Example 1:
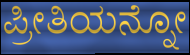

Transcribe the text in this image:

ಪ್ರೀತಿಯನ್ನೋ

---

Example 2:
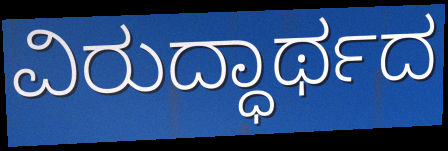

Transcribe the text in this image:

ವಿರುದ್ಧಾರ್ಥದ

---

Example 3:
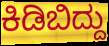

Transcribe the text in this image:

ಕಿಡಿಬಿದ್ದು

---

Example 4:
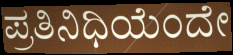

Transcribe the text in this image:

ಪ್ರತಿನಿಧಿಯೆಂದೇ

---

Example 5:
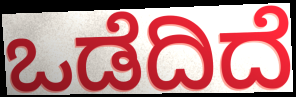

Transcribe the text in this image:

ಒಡೆದಿದೆ